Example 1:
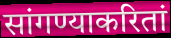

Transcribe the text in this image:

सांगण्याकरितां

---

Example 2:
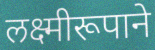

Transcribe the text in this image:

लक्ष्मीरूपाने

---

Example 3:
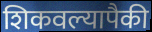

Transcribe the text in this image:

शिकवल्यापैकी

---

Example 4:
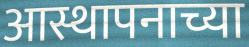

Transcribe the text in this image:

आस्थापनाच्या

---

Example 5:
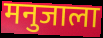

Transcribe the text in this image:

मनुजाला